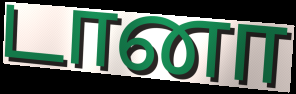
டானா